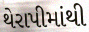
થેરાપીમાંથી